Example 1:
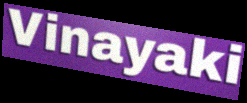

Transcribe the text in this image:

Vinayaki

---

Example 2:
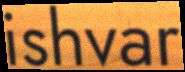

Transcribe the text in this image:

ishvar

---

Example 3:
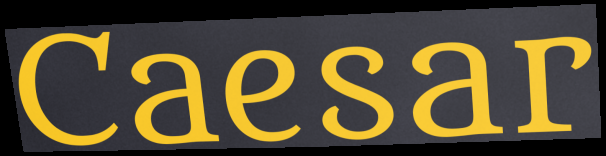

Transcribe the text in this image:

Caesar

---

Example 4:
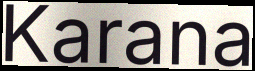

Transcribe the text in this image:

Karana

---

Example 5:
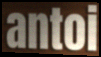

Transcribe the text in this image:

antoi